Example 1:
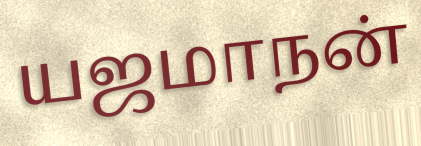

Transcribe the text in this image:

யஜமாநன்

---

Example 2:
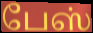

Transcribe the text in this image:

பேஸ்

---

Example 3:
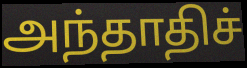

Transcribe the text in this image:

அந்தாதிச்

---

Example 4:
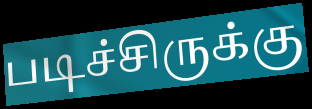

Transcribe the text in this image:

படிச்சிருக்கு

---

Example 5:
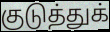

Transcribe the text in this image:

குடுத்துக்